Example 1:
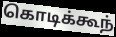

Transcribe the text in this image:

கொடிக்கூந்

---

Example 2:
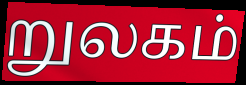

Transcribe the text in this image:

றுலகம்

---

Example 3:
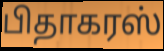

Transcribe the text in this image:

பிதாகரஸ்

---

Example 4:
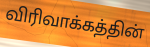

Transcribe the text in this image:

விரிவாக்கத்தின்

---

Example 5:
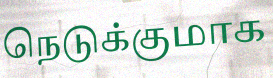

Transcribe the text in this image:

நெடுக்குமாக